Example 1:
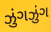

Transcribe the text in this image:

ઝુંગઝુંગ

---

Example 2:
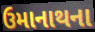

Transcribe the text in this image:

ઉમાનાથના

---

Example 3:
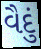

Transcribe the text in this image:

વૈદું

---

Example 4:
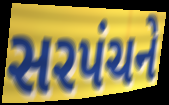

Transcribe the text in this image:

સરપંચને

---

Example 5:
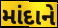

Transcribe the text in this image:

માંદાને